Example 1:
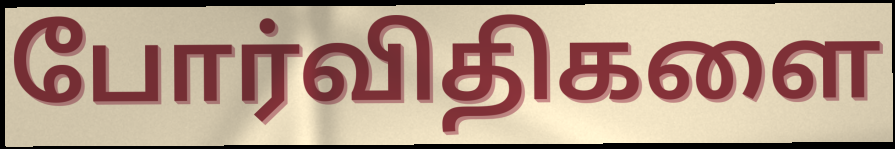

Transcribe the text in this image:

போர்விதிகளை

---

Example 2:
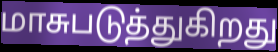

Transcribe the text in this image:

மாசுபடுத்துகிறது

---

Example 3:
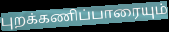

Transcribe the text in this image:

புறக்கணிப்பாரையும்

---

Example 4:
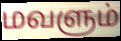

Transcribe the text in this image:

மவளும்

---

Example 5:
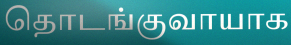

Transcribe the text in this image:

தொடங்குவாயாக